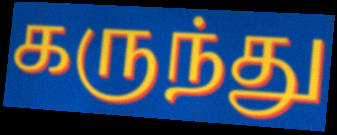
கருந்து